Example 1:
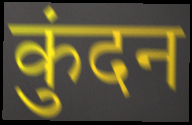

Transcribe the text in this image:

कुंदन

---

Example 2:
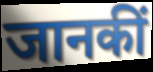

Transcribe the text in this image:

जानकीं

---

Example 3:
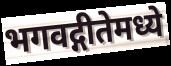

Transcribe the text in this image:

भगवद्गीतेमध्ये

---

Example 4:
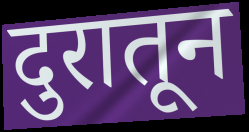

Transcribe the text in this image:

दुरातून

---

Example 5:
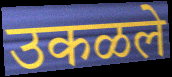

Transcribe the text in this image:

उकळले